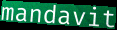
mandavit